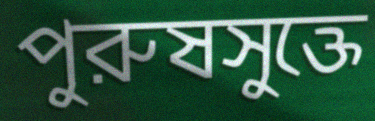
পুরুষসুক্তে